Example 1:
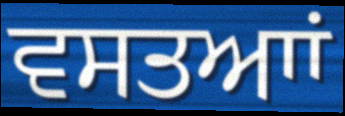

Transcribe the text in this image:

ਵਸਤਆਾਂ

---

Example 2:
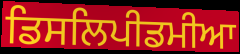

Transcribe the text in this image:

ਡਿਸਲਿਪੀਡਮੀਆ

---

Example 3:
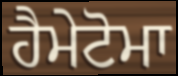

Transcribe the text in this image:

ਹੈਮੇਟੋਮਾ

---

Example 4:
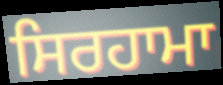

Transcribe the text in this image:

ਸਿਰਹਾਮਾ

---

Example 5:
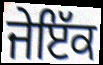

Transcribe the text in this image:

ਜੇਇੱਕ